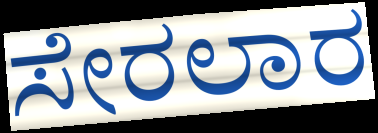
ಸೇರಲಾರ